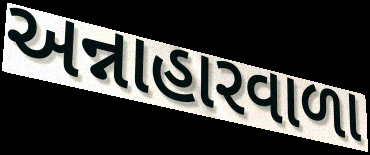
અન્નાહારવાળા